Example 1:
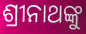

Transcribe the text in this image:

ଶ୍ରୀନାଥଙ୍କୁ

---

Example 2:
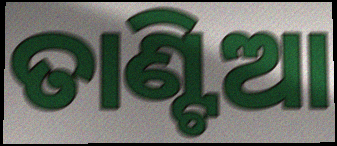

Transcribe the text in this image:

ତାଣ୍ଟିଆ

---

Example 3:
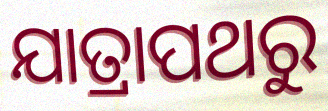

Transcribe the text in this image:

ଯାତ୍ରାପଥରୁ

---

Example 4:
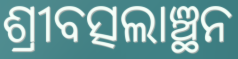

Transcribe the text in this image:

ଶ୍ରୀବତ୍ସଲାଞ୍ଛନ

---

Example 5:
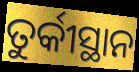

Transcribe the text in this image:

ତୁର୍କୀସ୍ଥାନ